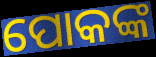
ପୋକଙ୍କ